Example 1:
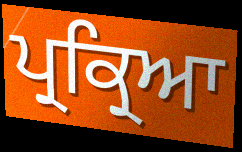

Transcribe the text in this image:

ਪ੍ਰਕ੍ਰਿਆ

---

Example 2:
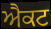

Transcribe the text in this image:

ਐਕਟ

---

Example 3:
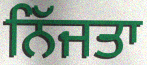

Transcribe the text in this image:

ਨਿੱਜਤਾ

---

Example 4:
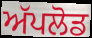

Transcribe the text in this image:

ਅੱਪਲੋਡ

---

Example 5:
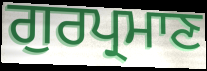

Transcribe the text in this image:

ਗੁਰਪ੍ਰਮਾਣ